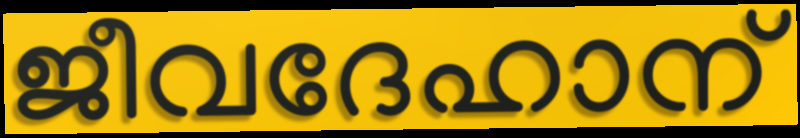
ജീവദേഹാന്